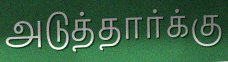
அடுத்தார்க்கு